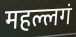
महल्लगं